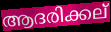
ആദരിക്കല്